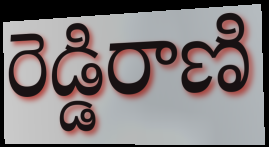
రెడ్డిరాణి